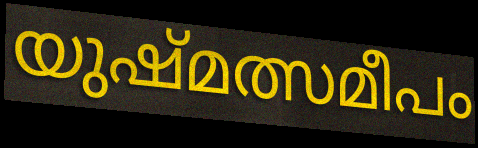
യുഷ്മത്സമീപം